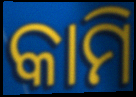
କାମି